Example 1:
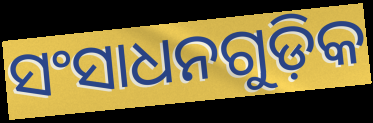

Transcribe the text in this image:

ସଂସାଧନଗୁଡ଼ିକ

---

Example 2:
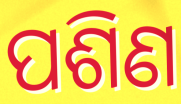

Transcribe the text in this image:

ପଶିଣ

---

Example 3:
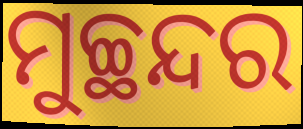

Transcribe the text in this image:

ମୁଚ୍ଛନ୍ଦର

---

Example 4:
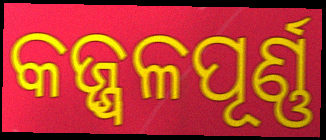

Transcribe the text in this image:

କଜ୍ଜ୍ୱଳପୂର୍ଣ୍ଣ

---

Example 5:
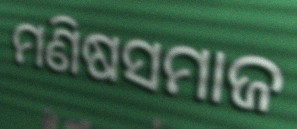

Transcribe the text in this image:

ମଣିଷସମାଜ